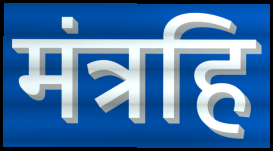
मंत्रहि